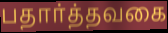
பதார்த்தவகை